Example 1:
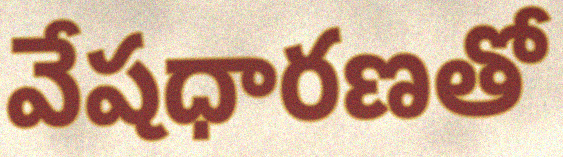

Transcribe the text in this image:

వేషధారణతో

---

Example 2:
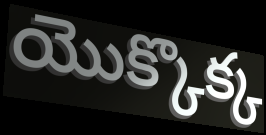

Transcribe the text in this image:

యొక్కొక్క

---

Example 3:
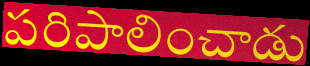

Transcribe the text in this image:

పరిపాలించాడు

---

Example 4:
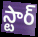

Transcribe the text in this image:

స్టార్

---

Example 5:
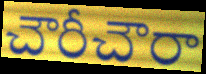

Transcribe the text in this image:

చౌరీచౌరా